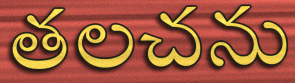
తలచను